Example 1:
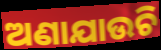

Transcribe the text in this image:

ଅଣାଯାଉଚି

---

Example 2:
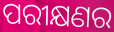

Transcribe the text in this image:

ପରୀକ୍ଷଣର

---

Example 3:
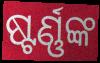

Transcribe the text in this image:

ଷ୍ଟର୍ଣ୍ଣଙ୍କ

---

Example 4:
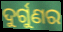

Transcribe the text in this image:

ଦୁର୍ଗୁଣର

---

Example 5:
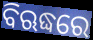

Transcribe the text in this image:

ବିଋଦ୍ଧରେ